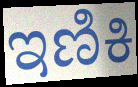
ಇಣಿಕಿ